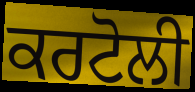
ਕਰਟੋਲੀ